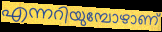
എന്നറിയുമ്പോഴാണ്